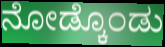
ನೋಡ್ಕೊಂಡು